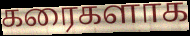
கரைகளாக